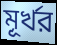
মূর্খর